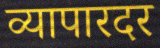
व्यापारदर